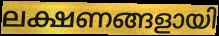
ലക്ഷണങ്ങളായി